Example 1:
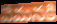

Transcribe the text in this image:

వేమనకి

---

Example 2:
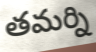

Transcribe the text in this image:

తమర్ని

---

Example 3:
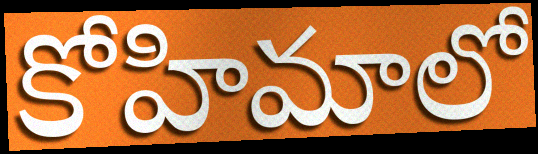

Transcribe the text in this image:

కోహిమాలో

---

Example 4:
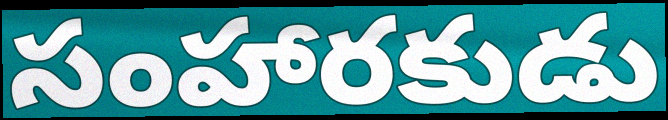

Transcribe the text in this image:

సంహారకుడు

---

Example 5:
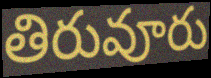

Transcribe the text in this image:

తిరువూరు